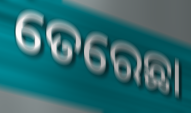
ତେରେଛା